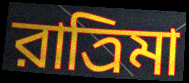
রাত্রিমা